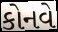
કોનવે